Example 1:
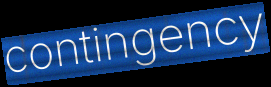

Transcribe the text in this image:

contingency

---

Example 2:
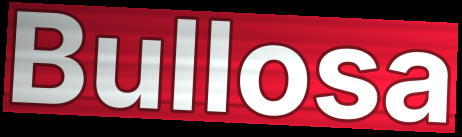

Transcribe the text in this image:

Bullosa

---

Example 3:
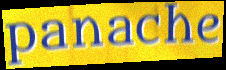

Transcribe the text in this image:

panache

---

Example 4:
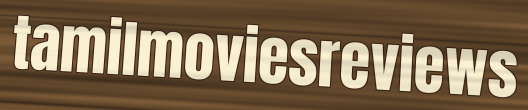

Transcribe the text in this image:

tamilmoviesreviews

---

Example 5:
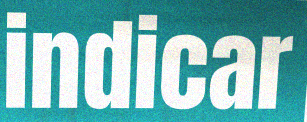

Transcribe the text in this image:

indicar